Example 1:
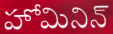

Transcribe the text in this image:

హోమినిన్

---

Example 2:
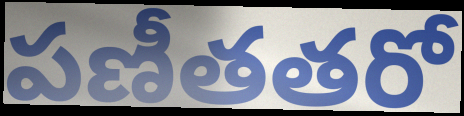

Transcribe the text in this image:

పణీతతరో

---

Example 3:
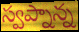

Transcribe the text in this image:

స్వప్నాన్న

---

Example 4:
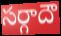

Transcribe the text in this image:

సర్గాదౌ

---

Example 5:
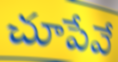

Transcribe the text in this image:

చూపేవే